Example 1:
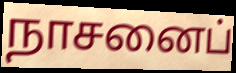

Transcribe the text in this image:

நாசனைப்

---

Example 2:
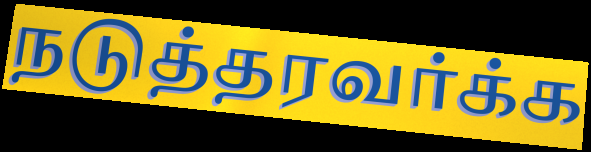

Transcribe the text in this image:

நடுத்தரவர்க்க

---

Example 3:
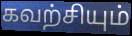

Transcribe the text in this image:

கவற்சியும்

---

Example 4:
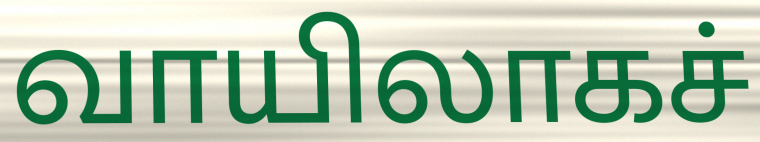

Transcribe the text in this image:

வாயிலாகச்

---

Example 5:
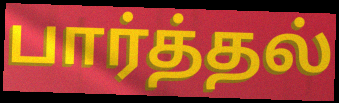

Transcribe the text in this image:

பார்த்தல்